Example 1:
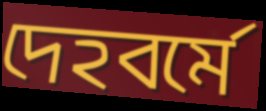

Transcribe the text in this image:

দেহবর্মে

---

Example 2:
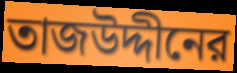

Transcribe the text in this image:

তাজউদ্দীনের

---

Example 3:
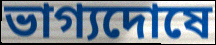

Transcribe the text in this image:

ভাগ্যদোষে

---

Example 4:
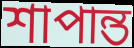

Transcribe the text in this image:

শাপান্ত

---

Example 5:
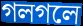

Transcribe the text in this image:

গলগলে